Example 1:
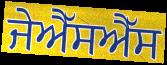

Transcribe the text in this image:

ਜੇਐੱਸਐੱਸ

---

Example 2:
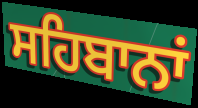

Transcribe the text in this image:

ਸਹਿਬਾਨਾਂ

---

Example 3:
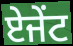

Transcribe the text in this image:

ਏਜੇਂਟ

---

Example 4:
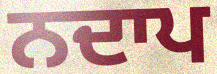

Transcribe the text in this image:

ਨਦਾਪ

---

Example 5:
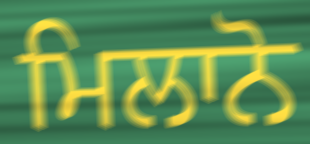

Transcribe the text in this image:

ਮਿਲਾਨੋ